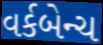
વર્કબેન્ચ